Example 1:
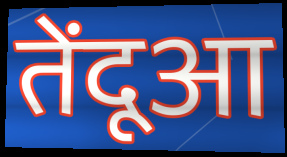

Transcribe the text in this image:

तेंदूआ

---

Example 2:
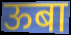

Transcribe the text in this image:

ऊबा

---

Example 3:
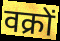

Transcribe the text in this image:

वक्रों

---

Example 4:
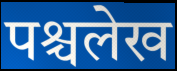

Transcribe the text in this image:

पश्चलेख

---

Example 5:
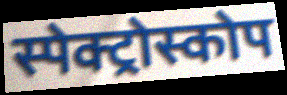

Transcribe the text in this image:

स्पेक्ट्रोस्कोप